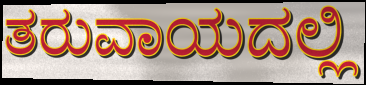
ತರುವಾಯದಲ್ಲಿ